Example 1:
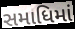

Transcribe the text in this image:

સમાધિમાં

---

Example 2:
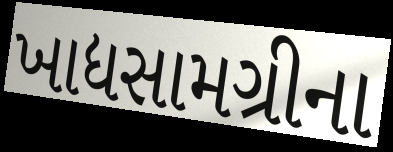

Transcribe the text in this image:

ખાદ્યસામગ્રીના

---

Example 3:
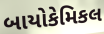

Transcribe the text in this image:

બાયોકેમિકલ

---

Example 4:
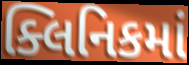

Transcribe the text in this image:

ક્લિનિકમાં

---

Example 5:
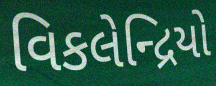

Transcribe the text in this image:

વિકલેન્દ્રિયો